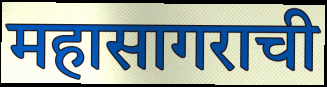
महासागराची